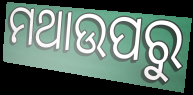
ମଥାଉପରୁ